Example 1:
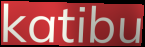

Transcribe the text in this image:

katibu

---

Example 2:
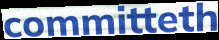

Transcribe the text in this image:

committeth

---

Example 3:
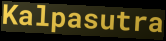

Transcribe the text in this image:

Kalpasutra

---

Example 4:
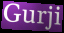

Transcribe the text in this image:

Gurji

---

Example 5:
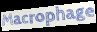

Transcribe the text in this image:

Macrophage